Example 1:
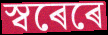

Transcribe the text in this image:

স্বৰেৰে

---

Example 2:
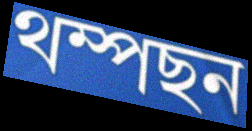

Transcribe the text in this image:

থম্পছন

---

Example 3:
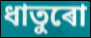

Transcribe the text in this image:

ধাতুৰো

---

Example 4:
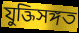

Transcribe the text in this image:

যুক্তিসঙ্গত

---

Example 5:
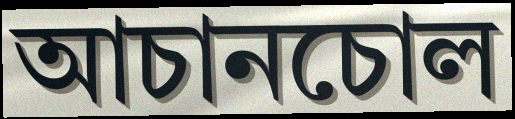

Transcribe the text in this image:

আচানচোল